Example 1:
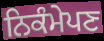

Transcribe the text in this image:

ਨਿਕੰਮੇਪਣ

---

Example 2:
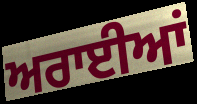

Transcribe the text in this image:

ਅਰਾਈਆਂ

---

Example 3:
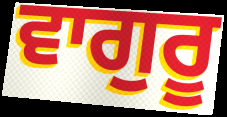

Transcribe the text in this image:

ਵਾਗੁਰੂ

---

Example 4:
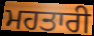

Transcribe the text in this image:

ਮਹਤਾਰੀ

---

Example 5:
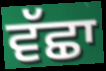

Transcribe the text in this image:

ਵੱਛਾ